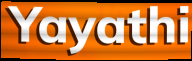
Yayathi